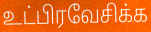
உட்பிரவேசிக்க